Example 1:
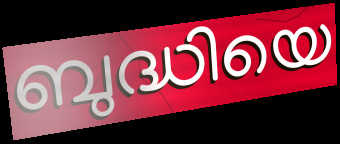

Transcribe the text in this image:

ബുദ്ധിയെ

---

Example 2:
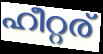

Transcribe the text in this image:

ഹീറ്റര്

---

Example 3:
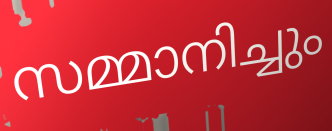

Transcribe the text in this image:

സമ്മാനിച്ചും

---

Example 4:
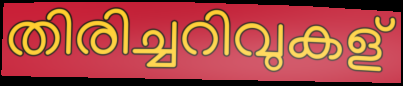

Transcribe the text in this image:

തിരിച്ചറിവുകള്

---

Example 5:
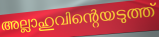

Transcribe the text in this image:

അല്ലാഹുവിന്റെയടുത്ത്